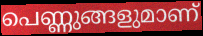
പെണ്ണുങ്ങളുമാണ്